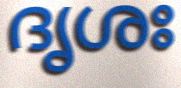
ദൃശഃ